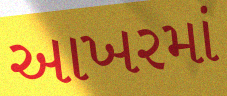
આખરમાં